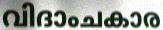
വിദാംചകാര